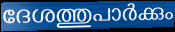
ദേശത്തുപാർക്കും